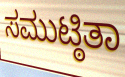
ಸಮುಟ್ಠಿತಾ